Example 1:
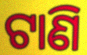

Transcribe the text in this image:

ଟାଣି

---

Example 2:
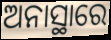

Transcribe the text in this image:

ଅନାସ୍ଥାରେ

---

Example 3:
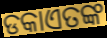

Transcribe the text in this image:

ଡକାଏତଙ୍କ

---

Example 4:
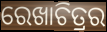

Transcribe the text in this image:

ରେଖାଚିତ୍ରର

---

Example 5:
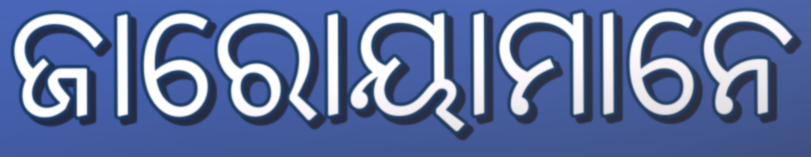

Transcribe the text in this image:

ଜାରୋୟାମାନେ